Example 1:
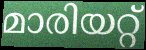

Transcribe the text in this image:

മാരിയറ്റ്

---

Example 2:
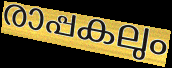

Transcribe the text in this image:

രാപ്പകലും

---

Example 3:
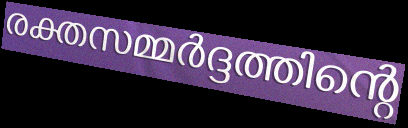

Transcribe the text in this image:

രക്തസമ്മർദ്ദത്തിന്റെ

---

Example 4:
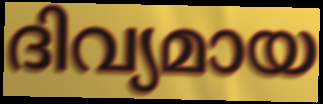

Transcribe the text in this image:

ദിവ്യമായ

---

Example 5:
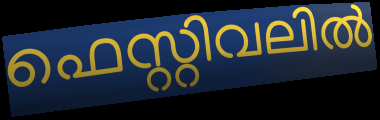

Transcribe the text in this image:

ഫെസ്റ്റിവലിൽ